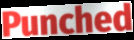
Punched